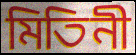
মিতিনী